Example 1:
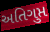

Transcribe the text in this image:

અતિગુપ્ત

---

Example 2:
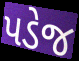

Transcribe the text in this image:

પડેજ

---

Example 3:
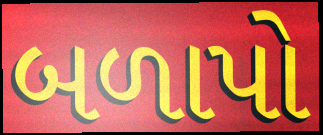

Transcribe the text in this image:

બળાપો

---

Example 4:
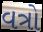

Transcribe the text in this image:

વત્રો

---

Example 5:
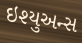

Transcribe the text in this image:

ઇશ્યુઅન્સ